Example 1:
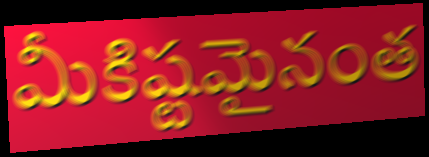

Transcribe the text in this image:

మీకిష్టమైనంత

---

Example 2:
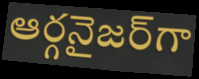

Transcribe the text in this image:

ఆర్గనైజర్‌గా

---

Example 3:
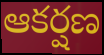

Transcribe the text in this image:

ఆకర్షణ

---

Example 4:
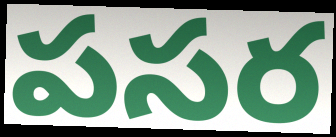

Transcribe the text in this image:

పసర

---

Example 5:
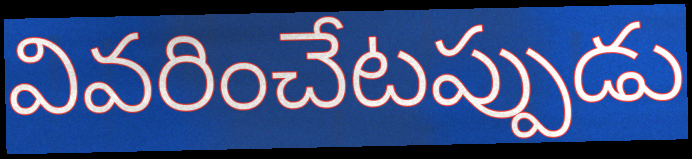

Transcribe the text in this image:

వివరించేటప్పుడు